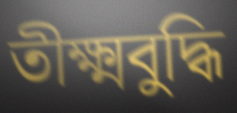
তীক্ষ্মবুদ্ধি